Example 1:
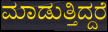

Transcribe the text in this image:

ಮಾಡುತ್ತಿದ್ದರೆ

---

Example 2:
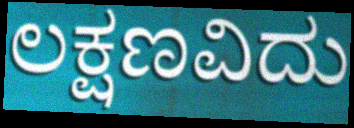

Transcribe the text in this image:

ಲಕ್ಷಣವಿದು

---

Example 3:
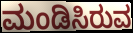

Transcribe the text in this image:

ಮಂಡಿಸಿರುವ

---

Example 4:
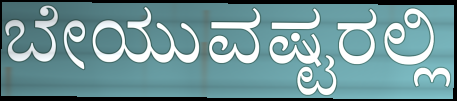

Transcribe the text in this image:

ಬೇಯುವಷ್ಟರಲ್ಲಿ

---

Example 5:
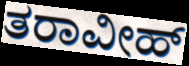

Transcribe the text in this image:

ತರಾವೀಹ್